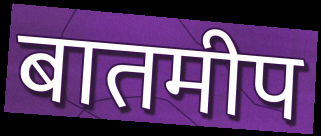
बातमीप